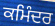
ਕਮਿੰਦਰ